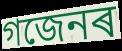
গজেনৰ